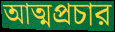
আত্মপ্রচার